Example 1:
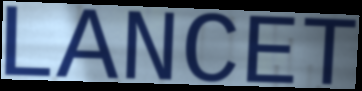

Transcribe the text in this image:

LANCET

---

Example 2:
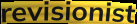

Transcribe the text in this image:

revisionist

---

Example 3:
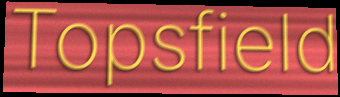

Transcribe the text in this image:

Topsfield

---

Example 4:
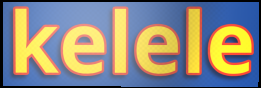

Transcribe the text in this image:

kelele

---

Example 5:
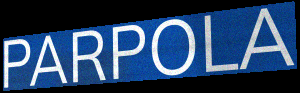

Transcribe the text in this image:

PARPOLA